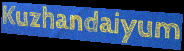
Kuzhandaiyum